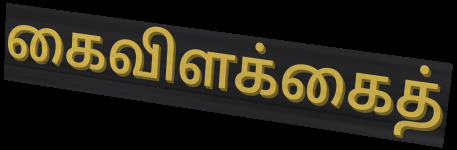
கைவிளக்கைத்